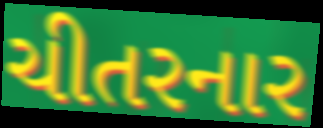
ચીતરનાર